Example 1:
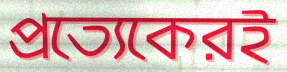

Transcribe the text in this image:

প্রত্যেকেরই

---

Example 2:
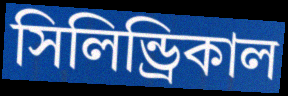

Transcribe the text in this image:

সিলিন্ড্রিকাল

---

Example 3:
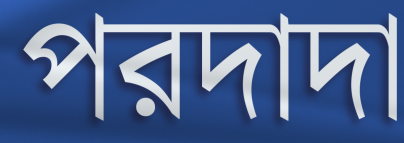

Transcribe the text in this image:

পরদাদা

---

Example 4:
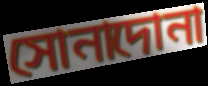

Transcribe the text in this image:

সোনাদোনা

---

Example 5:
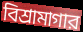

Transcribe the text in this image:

বিশ্রামাগার